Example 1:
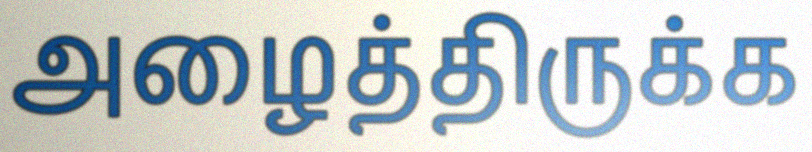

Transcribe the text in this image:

அழைத்திருக்க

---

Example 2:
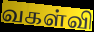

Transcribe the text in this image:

வகள்வி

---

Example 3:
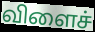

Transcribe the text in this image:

விளைச்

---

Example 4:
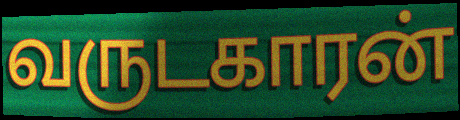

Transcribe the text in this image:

வருடகாரன்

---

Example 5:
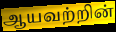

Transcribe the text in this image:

ஆயவற்றின்